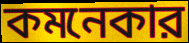
কমনেকার